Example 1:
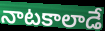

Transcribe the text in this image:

నాటకాలాడే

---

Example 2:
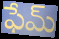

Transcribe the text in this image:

ఫేమ్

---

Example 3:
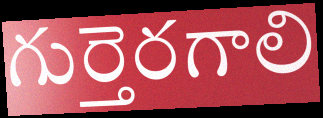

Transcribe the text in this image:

గుర్తెరగాలి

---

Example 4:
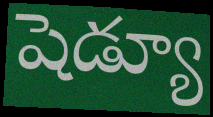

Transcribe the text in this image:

షెడ్యూ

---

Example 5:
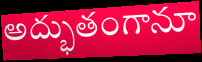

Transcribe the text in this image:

అద్భుతంగానూ